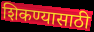
शिकण्यासाठी